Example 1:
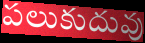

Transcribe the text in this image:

పలుకుదువు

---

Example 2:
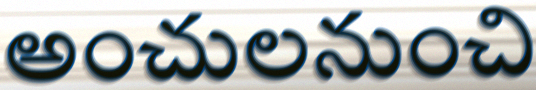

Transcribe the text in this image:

అంచులనుంచి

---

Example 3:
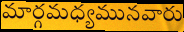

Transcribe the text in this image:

మార్గమధ్యమునవారు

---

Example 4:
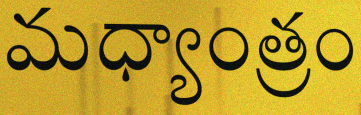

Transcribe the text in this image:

మధ్యాంత్రం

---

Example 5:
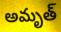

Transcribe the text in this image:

అమృత్